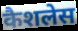
कैशलेस